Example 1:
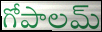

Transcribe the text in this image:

గోపాలమ్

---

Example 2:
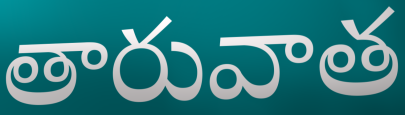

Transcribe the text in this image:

తారువాత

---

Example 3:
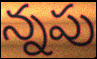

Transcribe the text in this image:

న్నపు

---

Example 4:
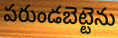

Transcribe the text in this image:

పరుండబెట్టెను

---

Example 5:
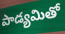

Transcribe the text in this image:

పాడ్యమితో